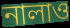
নালাও